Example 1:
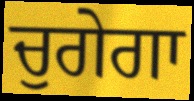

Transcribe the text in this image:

ਚੁਗੇਗਾ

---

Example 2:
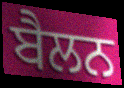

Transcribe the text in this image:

ਬੈਲਨ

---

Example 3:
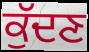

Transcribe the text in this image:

ਕੁੱਦਣ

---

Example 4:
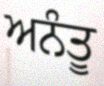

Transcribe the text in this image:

ਅਨੰਤੂ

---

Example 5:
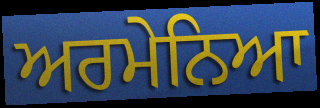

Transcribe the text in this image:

ਅਰਮੇਨਿਆ